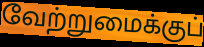
வேற்றுமைக்குப்